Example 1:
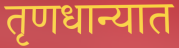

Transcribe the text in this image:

तृणधान्यात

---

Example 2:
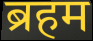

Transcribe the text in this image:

ब्रहम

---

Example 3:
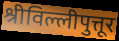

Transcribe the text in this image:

श्रीविल्लीपुत्तूर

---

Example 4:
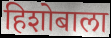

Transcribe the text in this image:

हिशोबाला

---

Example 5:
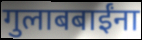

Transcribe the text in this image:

गुलाबबाईंना